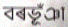
বৰভূঁঞা